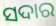
ସଦାର